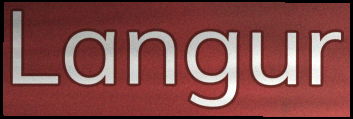
Langur